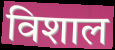
विशाल